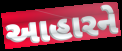
આહારને